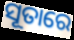
ସୂତାରେ